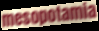
mesopotamia